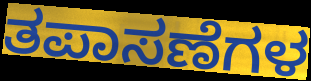
ತಪಾಸಣೆಗಳ